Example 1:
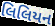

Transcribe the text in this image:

લિલિયન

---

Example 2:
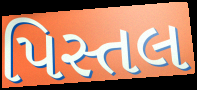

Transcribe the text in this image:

પિસ્તલ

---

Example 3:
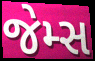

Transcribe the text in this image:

જેમ્સ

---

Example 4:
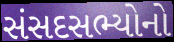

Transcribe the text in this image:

સંસદસભ્યોનો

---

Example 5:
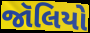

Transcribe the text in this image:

જૉલિયો